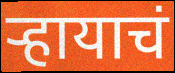
ऱ्हायाचं